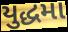
યુદ્ધમા